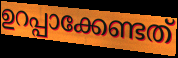
ഉറപ്പാക്കേണ്ടത്